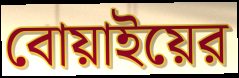
বোয়াইয়ের